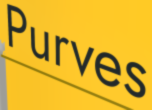
Purves